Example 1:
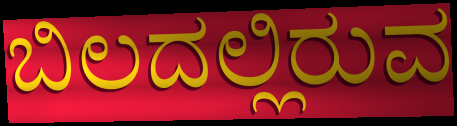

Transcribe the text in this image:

ಬಿಲದಲ್ಲಿರುವ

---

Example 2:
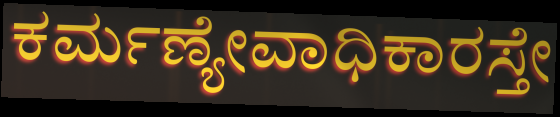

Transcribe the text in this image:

ಕರ್ಮಣ್ಯೇವಾಧಿಕಾರಸ್ತೇ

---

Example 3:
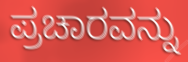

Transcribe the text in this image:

ಪ್ರಚಾರವನ್ನು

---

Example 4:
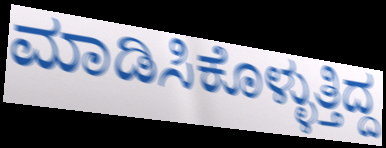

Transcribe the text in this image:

ಮಾಡಿಸಿಕೊಳ್ಳುತ್ತಿದ್ದ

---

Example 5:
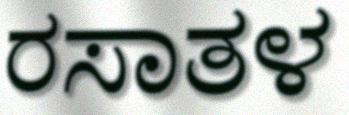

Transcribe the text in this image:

ರಸಾತಳ